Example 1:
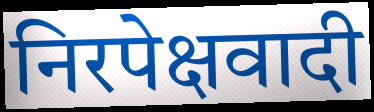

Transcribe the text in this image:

निरपेक्षवादी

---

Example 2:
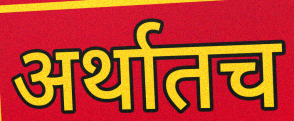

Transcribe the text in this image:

अर्थातच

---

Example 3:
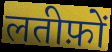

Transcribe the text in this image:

लतीफ़ों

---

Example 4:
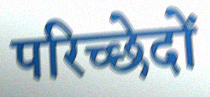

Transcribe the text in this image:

परिच्छेदों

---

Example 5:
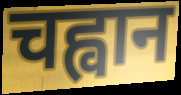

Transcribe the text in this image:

चह्वान